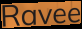
Ravee